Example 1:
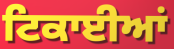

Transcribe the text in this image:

ਟਿਕਾਈਆਂ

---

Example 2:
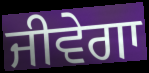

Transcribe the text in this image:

ਜੀਵੇਗਾ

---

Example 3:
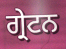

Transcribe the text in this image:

ਗ੍ਰੇਟਨ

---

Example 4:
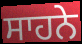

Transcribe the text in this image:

ਸਾਹਨੇ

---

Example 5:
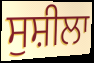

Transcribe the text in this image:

ਸੁਸ਼ੀਲਾ